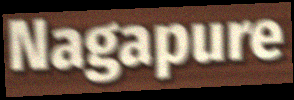
Nagapure